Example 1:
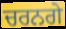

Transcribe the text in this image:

ਚਰਨਗੇ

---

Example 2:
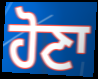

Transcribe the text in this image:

ਹੋਣਾ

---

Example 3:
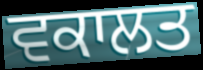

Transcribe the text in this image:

ਵਕਾਲਤ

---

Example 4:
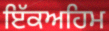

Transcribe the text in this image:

ਇੱਕਅਹਿਮ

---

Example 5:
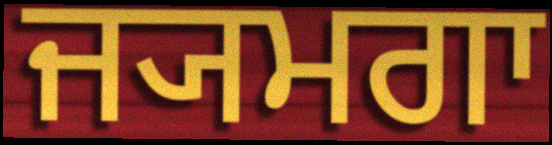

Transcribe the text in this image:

ਜ੍ਯਮਗਾ